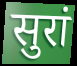
सुरां